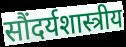
सौंदर्यशास्त्रीय